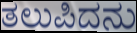
ತಲುಪಿದನು